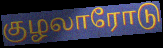
குழலாரோடு